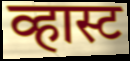
व्हास्ट